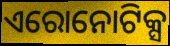
ଏରୋନୋଟିକ୍ସ